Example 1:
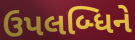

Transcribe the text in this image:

ઉપલબ્ધિને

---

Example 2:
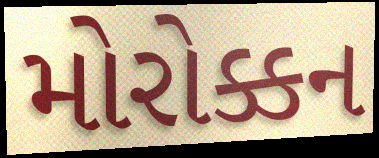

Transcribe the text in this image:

મોરોક્કન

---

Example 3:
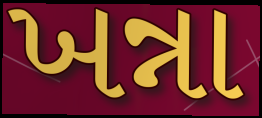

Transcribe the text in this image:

ખન્ના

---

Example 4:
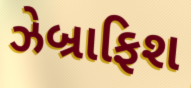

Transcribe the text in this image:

ઝેબ્રાફિશ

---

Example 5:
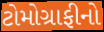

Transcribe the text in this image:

ટોમોગ્રાફીનો